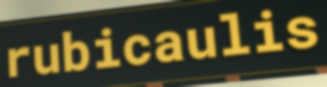
rubicaulis